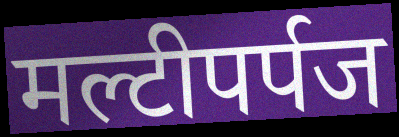
मल्टीपर्पज